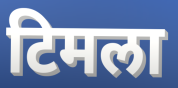
टिमला